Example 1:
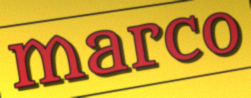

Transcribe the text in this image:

marco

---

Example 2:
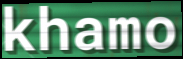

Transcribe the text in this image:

khamo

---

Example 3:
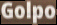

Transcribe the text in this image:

Golpo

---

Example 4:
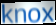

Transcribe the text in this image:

knox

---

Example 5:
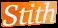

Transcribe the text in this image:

Stith